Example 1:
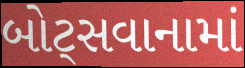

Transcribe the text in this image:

બોટ્સવાનામાં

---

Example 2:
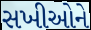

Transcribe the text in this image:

સખીઓને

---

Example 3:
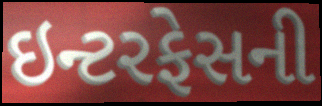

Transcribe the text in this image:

ઇન્ટરફેસની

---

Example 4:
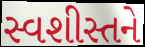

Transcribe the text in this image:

સ્વશીસ્તને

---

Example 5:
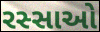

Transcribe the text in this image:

રસ્સાઓ